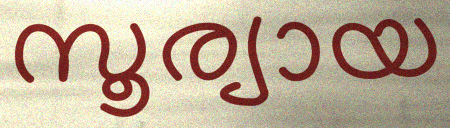
സൂര്യായ